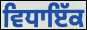
ਵਿਧਾਇੱਕ